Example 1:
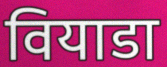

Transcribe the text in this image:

वियाडा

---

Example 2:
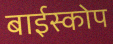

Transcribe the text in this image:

बाईस्कोप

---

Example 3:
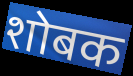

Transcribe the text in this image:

शोबक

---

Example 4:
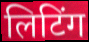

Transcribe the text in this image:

लिटिंग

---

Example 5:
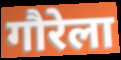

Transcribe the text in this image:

गौरेला